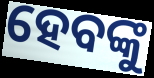
ହେବଙ୍କୁ